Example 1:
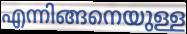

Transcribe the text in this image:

എന്നിങ്ങനെയുള്ള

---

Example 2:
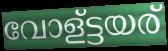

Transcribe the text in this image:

വോള്ട്ടയര്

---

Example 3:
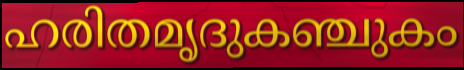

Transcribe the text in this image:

ഹരിതമൃദുകഞ്ചുകം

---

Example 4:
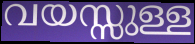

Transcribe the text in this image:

വയസ്സുള്ള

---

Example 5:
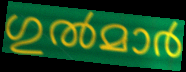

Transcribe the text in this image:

ഗുൽമാർ